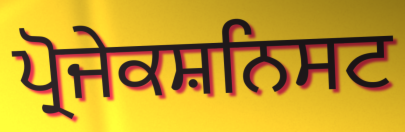
ਪ੍ਰੋਜੇਕਸ਼ਨਿਸਟ